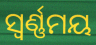
ସ୍ଵର୍ଣ୍ଣମୟ